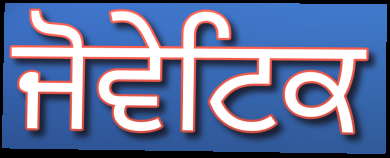
ਜੋਵੇਟਿਕ